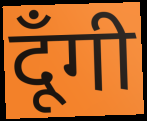
दूँगी